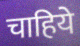
चाहिये